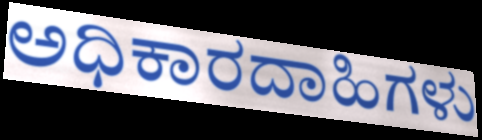
ಅಧಿಕಾರದಾಹಿಗಳು